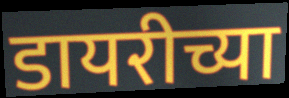
डायरीच्या